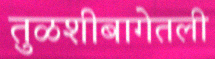
तुळशीबागेतली